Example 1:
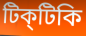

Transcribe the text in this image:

টিক্‌টিকি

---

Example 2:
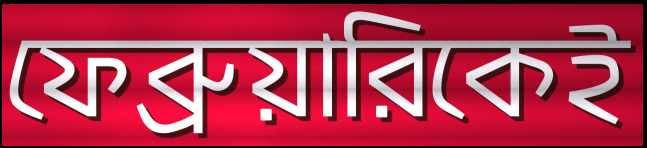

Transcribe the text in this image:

ফেব্রুয়ারিকেই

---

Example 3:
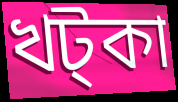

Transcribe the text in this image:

খট্‌কা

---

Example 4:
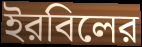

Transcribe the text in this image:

ইরবিলের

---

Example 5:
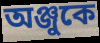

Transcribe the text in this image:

অঞ্জুকে